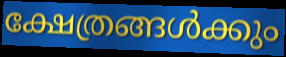
ക്ഷേത്രങ്ങൾക്കും